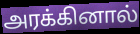
அரக்கினால்